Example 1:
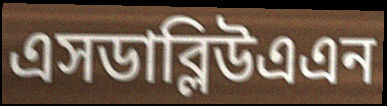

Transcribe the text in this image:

এসডাব্লিউএএন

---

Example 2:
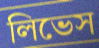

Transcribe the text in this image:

লিভেস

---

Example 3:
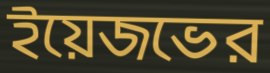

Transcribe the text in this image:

ইয়েজভের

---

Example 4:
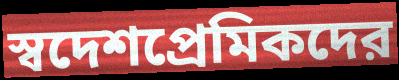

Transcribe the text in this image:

স্বদেশপ্রেমিকদের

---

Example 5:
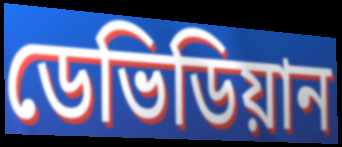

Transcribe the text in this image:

ডেভিডিয়ান